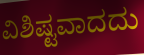
ವಿಶಿಷ್ಟವಾದದು